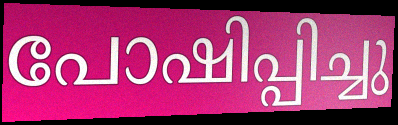
പോഷിപ്പിച്ചു